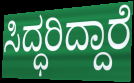
ಸಿದ್ಧರಿದ್ದಾರೆ